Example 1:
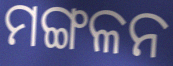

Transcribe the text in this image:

ମଙ୍ଗଳନ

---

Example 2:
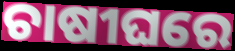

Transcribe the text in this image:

ଚାଷୀଘରେ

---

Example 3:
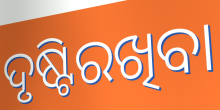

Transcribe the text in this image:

ଦୃଷ୍ଟିରଖିବା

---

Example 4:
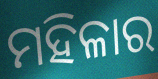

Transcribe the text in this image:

ମହିଳାର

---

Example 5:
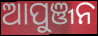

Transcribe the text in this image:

ଆପୁଞ୍ଜନ